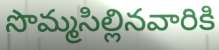
సొమ్మసిల్లినవారికి